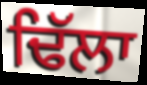
ਢਿੱਲਾ